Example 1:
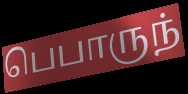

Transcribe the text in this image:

பெபாருந்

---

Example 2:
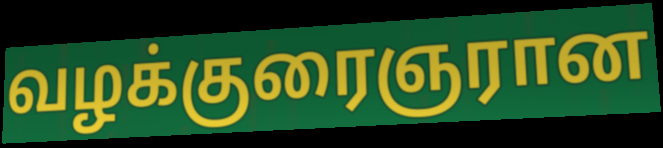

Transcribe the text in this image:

வழக்குரைஞரான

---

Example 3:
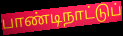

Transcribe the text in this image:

பாண்டிநாட்டுப்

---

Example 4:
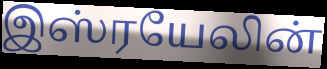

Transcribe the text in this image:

இஸ்ரயேலின்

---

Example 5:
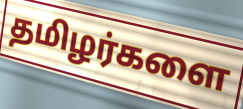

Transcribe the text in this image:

தமிழர்களை